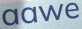
aawe